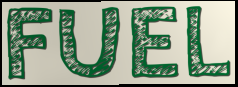
FUEL